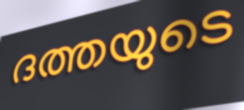
ദത്തയുടെ